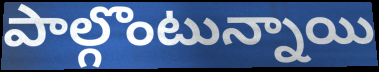
పాల్గొంటున్నాయి